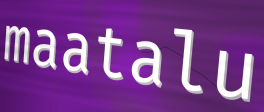
maatalu